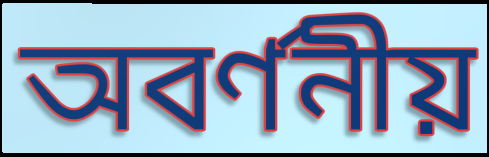
অবর্ণনীয়